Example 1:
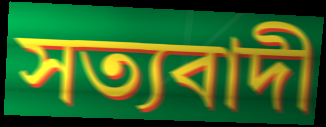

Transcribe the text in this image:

সত্যবাদী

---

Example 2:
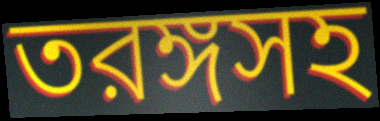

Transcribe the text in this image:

তরঙ্গসহ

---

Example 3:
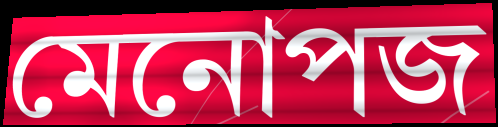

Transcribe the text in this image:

মেনোপজ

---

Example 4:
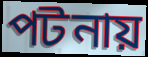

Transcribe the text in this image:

পটনায়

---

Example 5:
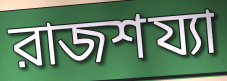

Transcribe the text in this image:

রাজশয্যা